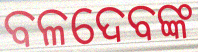
ବଳଦେବଙ୍କ